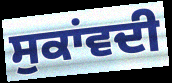
ਸੁਕਾਂਵਦੀ